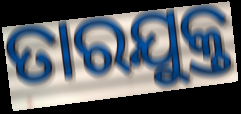
ତାରଯୁକ୍ତ